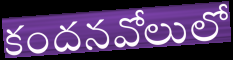
కందనవోలులో